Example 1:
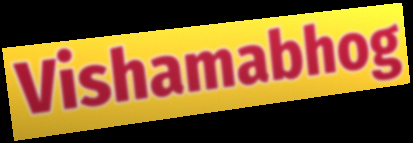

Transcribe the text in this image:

Vishamabhog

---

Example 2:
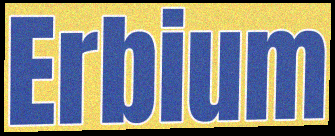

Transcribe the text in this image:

Erbium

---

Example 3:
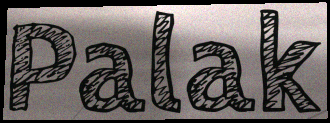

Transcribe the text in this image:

Palak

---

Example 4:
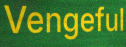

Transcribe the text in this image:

Vengeful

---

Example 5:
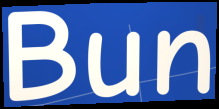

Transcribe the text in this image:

Bun